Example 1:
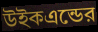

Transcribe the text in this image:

উইকএন্ডের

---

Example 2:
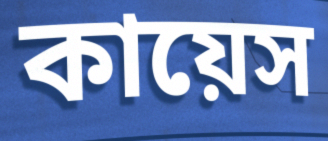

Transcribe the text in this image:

কায়েস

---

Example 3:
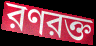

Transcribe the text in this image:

রণরক্ত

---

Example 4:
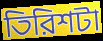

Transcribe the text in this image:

তিরিশটা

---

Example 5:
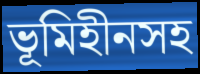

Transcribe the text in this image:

ভূমিহীনসহ